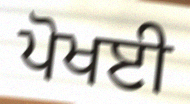
ਪੋਖਈ